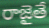
రాజైతే